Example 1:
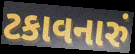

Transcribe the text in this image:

ટકાવનારું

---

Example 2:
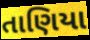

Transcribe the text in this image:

તાણિયા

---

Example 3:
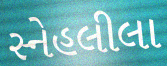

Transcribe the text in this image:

સ્નેહલીલા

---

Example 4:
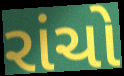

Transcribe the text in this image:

રાંચો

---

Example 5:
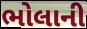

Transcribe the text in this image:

ભોલાની